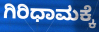
ಗಿರಿಧಾಮಕ್ಕೆ